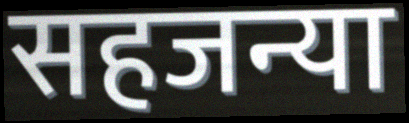
सहजन्या